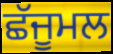
ਛੱਜੂਮਲ